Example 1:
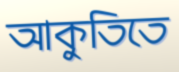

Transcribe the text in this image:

আকুতিতে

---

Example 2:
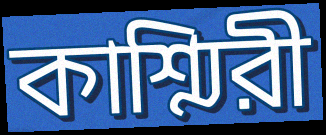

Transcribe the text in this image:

কাশ্মিরী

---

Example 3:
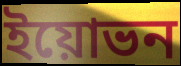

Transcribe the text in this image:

ইয়োভন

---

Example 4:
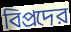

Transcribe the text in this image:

বিপ্রদের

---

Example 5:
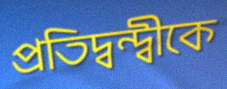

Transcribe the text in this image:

প্রতিদ্বন্দ্বীকে